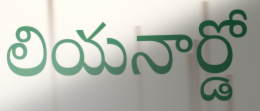
లియనార్డో